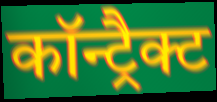
कॉन्ट्रैक्ट